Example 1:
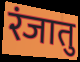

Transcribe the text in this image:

रंजातु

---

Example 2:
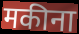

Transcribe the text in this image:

मकीना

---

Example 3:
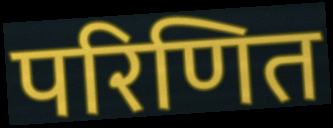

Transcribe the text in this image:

परिणित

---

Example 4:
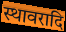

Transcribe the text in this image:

स्थावरादि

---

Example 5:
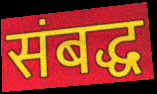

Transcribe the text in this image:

संबद्ध